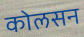
कोलसन